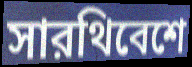
সারথিবেশে